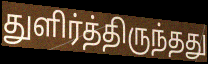
துளிர்த்திருந்தது